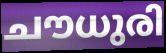
ചൗധുരി